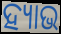
ହ୍ୟାଭ